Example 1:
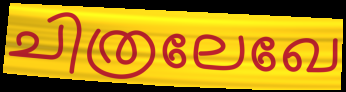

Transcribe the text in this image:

ചിത്രലേഖേ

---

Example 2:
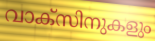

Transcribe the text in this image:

വാക്സിനുകളും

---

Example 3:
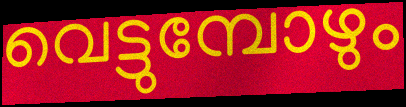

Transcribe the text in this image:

വെട്ടുമ്പോഴും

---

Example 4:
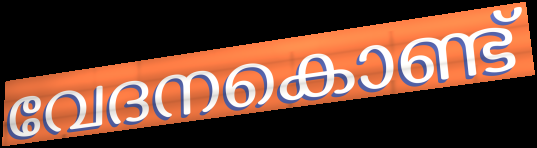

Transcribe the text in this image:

വേദനകൊണ്ട്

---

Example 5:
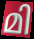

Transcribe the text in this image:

മി